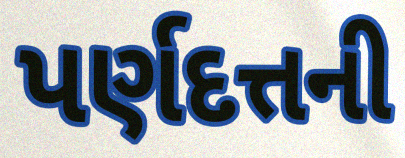
પર્ણદત્તની